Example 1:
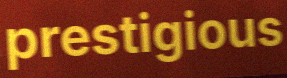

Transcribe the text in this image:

prestigious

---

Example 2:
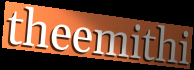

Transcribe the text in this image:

theemithi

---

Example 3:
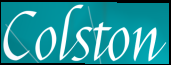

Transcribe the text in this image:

Colston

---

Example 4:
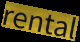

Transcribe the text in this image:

rental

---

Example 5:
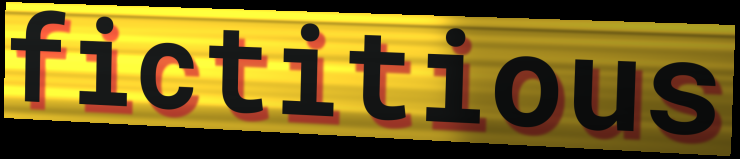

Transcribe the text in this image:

fictitious